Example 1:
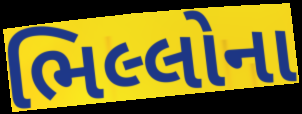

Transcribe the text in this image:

ભિલ્લોના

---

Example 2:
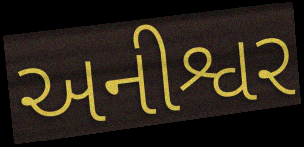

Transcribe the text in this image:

અનીશ્વર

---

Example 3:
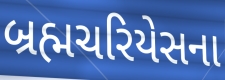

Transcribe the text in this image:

બ્રહ્મચરિયેસના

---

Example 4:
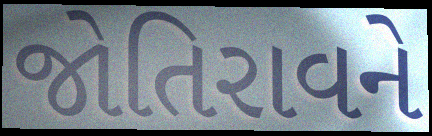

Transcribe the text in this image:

જોતિરાવને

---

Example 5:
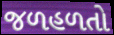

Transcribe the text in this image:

જળહળતો